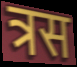
त्रस